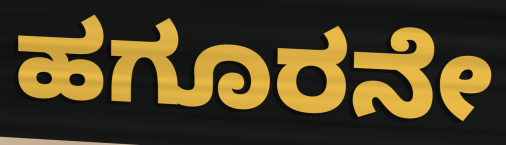
ಹಗೂರನೇ